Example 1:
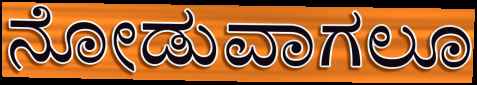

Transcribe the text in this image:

ನೋಡುವಾಗಲೂ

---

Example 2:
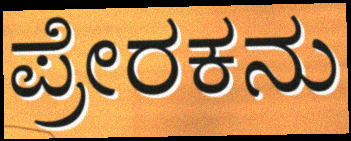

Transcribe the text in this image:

ಪ್ರೇರಕನು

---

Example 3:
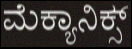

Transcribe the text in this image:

ಮೆಕ್ಯಾನಿಕ್ಸ್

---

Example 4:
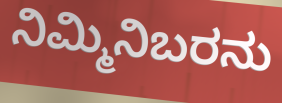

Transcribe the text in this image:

ನಿಮ್ಮಿನಿಬರನು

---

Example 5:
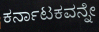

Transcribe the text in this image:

ಕರ್ನಾಟಕವನ್ನೇ